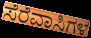
ಸೆರೆವಾಸಿಗಳ